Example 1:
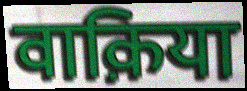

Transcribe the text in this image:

वाक़िया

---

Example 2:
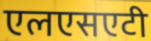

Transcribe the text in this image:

एलएसएटी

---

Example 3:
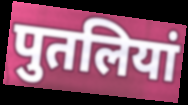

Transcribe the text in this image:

पुतलियां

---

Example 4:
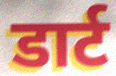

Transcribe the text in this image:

डार्ट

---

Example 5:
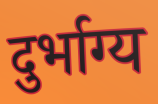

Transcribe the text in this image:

दुर्भाग्य